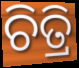
ଚିତ୍ରି